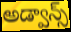
అడ్వాన్స్